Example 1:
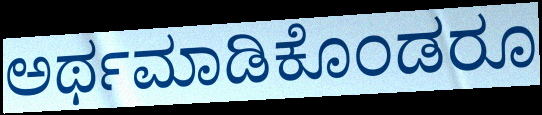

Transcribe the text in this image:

ಅರ್ಥಮಾಡಿಕೊಂಡರೂ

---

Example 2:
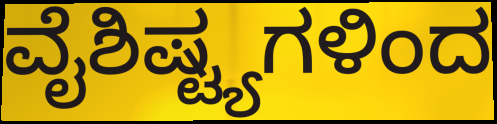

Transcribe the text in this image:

ವೈಶಿಷ್ಟ್ಯಗಳಿಂದ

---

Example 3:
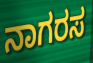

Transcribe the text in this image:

ನಾಗರಸ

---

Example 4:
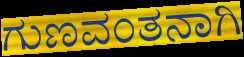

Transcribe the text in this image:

ಗುಣವಂತನಾಗಿ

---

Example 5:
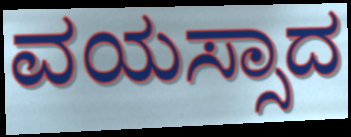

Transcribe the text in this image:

ವಯಸ್ಸಾದ